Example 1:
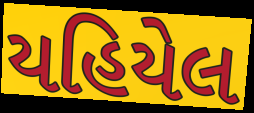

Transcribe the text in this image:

યહિયેલ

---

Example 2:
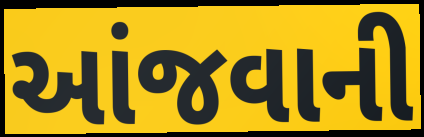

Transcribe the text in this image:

આંજવાની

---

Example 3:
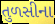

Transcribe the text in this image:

તુળસીના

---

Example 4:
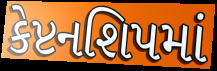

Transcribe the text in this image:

કેપ્ટનશિપમાં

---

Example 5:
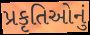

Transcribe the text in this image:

પ્રકૃતિઓનું